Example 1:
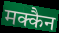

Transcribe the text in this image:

मक्कैन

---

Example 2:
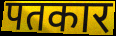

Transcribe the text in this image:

पतकार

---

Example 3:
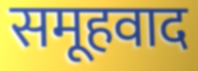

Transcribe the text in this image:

समूहवाद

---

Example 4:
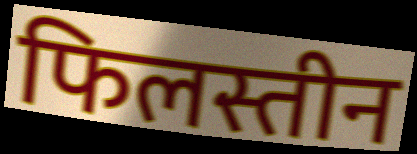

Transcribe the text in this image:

फिलस्तीन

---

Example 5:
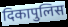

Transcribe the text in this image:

दिकापुलिस